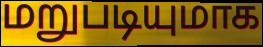
மறுபடியுமாக